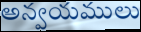
అన్వయములు